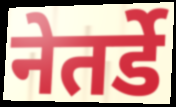
नेतर्डे